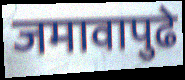
जमावापुढे